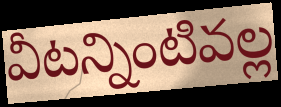
వీటన్నింటివల్ల